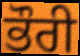
ਭੌਰੀ